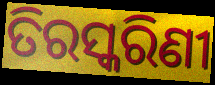
ତିରସ୍କରିଣୀ